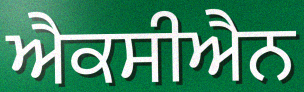
ਐਕਸੀਐਨ